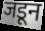
जडून